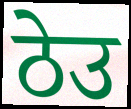
ठेउ